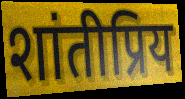
शांतीप्रिय